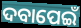
ଦବାପେଇଁ